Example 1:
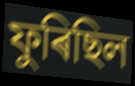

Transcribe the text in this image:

ফুৰিছিল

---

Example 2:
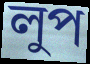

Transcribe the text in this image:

লুপ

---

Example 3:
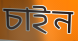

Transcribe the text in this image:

চাইন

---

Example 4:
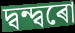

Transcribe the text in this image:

দ্বন্দ্বৰো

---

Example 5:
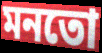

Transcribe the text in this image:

মনতো